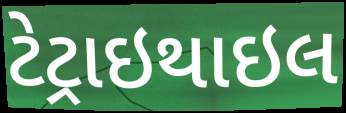
ટેટ્રાઇથાઇલ